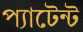
প্যাটেন্ট